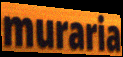
muraria